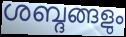
ശബ്ദങ്ങളും